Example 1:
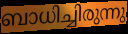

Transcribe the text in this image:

ബാധിച്ചിരുന്നു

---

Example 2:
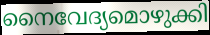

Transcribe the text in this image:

നൈവേദ്യമൊഴുക്കി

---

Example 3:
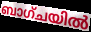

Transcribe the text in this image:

ബാഗ്ചയിൽ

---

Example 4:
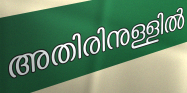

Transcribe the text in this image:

അതിരിനുള്ളിൽ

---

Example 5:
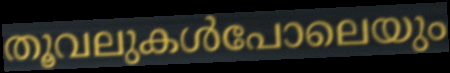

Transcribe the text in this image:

തൂവലുകൾപോലെയും